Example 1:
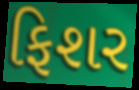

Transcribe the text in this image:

ફિશર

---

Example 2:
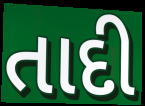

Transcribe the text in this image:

તાદી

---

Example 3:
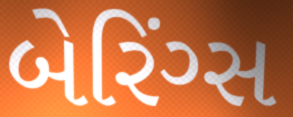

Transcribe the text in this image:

બેરિંગ્સ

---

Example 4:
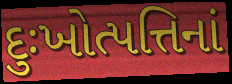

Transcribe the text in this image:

દુઃખોત્પત્તિનાં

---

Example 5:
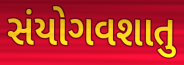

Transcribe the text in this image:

સંયોગવશાતુ